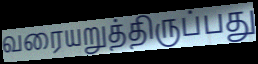
வரையறுத்திருப்பது